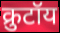
क्रुटॉय